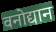
वनोद्यान